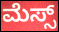
ಮೆಸ್ಸ್